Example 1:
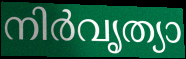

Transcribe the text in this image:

നിർവൃത്യാ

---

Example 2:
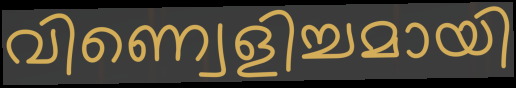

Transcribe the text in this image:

വിണ്വെളിച്ചമായി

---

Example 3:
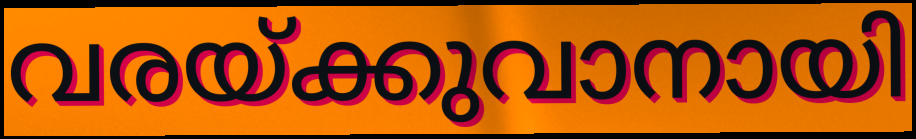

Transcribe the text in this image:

വരയ്ക്കുവാനായി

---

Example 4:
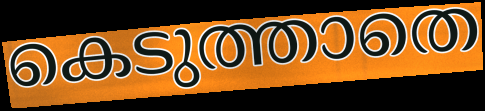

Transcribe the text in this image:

കെടുത്താതെ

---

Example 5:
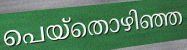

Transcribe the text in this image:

പെയ്തൊഴിഞ്ഞ